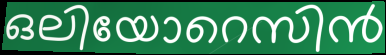
ഒലിയോറെസിൻ